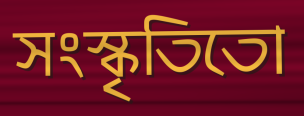
সংস্কৃতিতো